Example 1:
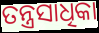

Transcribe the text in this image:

ତନ୍ତ୍ରସାଧିକା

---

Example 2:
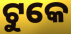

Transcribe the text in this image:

ଟୁକେ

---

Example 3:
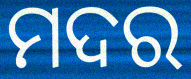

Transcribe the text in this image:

ମଦର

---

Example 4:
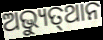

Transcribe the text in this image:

ଅଭ୍ୟୁତ୍‌ଥାନ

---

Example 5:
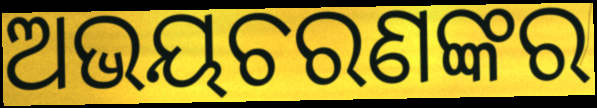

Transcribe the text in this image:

ଅଭୟଚରଣଙ୍କର